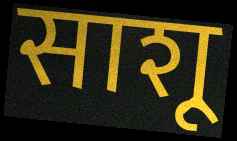
साश्रू